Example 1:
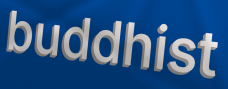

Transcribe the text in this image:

buddhist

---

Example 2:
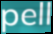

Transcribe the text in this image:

pell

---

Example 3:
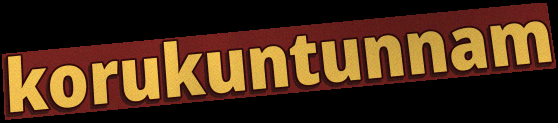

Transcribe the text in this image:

korukuntunnam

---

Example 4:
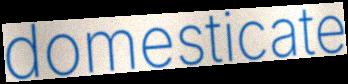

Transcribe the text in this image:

domesticate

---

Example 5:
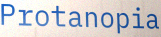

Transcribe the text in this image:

Protanopia